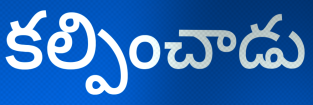
కల్పించాడు